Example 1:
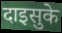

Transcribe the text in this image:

दाइसुके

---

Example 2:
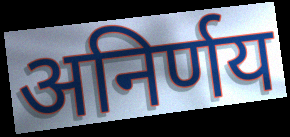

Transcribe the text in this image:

अनिर्णय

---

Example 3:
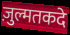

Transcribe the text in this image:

ज़ुल्मतकदे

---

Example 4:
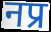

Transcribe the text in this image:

नप्र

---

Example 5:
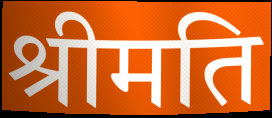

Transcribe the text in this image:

श्रीमति